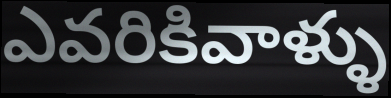
ఎవరికివాళ్ళు